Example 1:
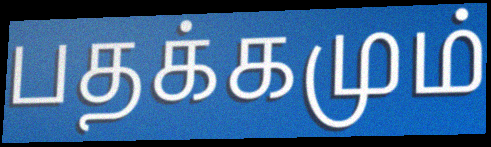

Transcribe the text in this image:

பதக்கமும்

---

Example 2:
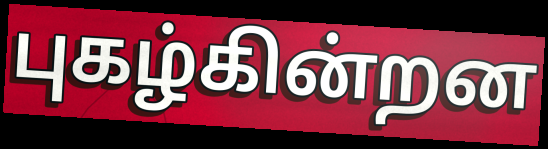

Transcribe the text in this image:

புகழ்கின்றன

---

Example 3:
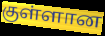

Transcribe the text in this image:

குள்ளான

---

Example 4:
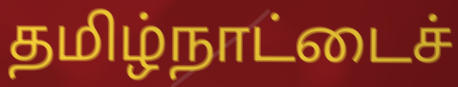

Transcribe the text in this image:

தமிழ்நாட்டைச்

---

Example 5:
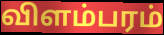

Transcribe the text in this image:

விளம்பரம்